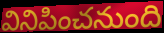
వినిపించనుంది